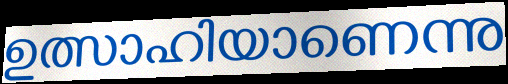
ഉത്സാഹിയാണെന്നു